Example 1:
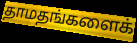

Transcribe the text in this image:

தாமதங்களைக்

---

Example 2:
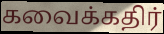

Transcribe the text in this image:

கவைக்கதிர்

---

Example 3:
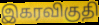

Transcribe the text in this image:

இகரவிகுதி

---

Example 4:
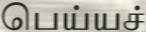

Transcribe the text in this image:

பெய்யச்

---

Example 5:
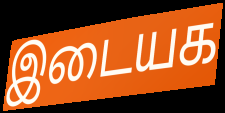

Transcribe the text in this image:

இடையக